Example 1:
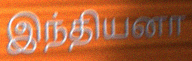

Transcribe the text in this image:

இந்தியனா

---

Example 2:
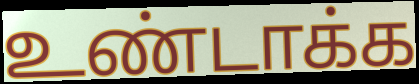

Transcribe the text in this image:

உண்டாக்க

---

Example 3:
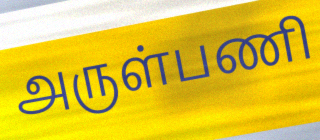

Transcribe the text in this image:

அருள்பணி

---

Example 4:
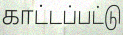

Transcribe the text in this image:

காட்டப்பட்டு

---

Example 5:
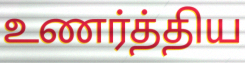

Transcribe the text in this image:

உணர்த்திய